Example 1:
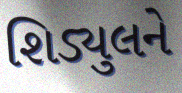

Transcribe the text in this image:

શિડ્યુલને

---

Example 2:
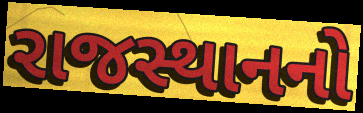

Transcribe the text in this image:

રાજસ્થાનનો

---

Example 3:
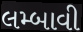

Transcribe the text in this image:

લમ્બાવી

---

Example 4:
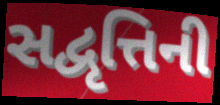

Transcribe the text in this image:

સદ્વૃત્તિની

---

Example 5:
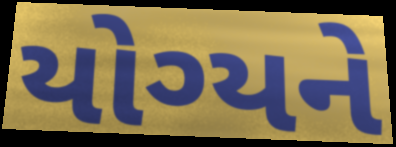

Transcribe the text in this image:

યોગ્યને